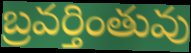
బ్రవర్తింతువు